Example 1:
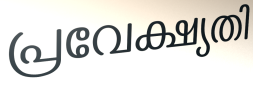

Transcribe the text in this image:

പ്രവേക്ഷ്യതി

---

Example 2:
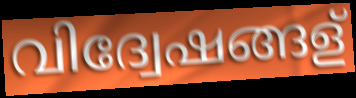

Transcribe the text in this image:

വിദ്വേഷങ്ങള്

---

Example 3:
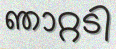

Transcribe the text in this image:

ഞാറ്റടി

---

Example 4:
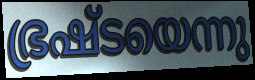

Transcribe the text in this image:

ഭ്രഷ്ടയെന്നു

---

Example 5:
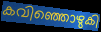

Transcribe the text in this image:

കവിഞ്ഞൊഴുകി